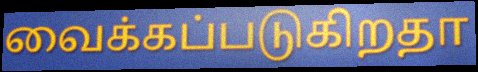
வைக்கப்படுகிறதா